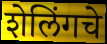
शेलिंगचे